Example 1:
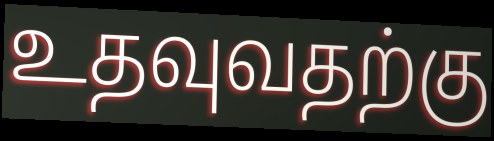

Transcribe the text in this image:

உதவுவதற்கு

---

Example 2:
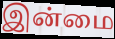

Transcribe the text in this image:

இன்மை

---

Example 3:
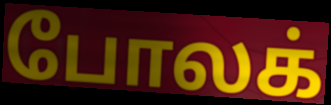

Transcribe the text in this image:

போலக்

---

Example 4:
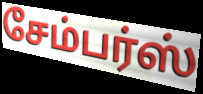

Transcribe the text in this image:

சேம்பர்ஸ்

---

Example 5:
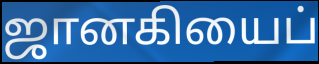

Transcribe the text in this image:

ஜானகியைப்